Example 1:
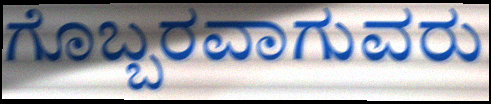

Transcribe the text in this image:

ಗೊಬ್ಬರವಾಗುವರು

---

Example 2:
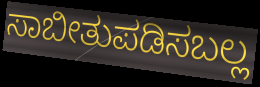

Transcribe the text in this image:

ಸಾಬೀತುಪಡಿಸಬಲ್ಲ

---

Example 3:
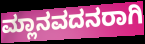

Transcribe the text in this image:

ಮ್ಲಾನವದನರಾಗಿ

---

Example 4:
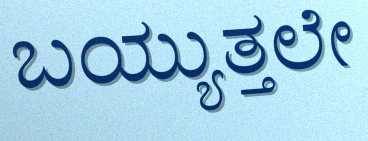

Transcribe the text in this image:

ಬಯ್ಯುತ್ತಲೇ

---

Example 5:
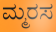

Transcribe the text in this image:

ಮ್ಮರಸ